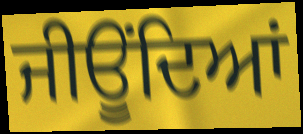
ਜੀਊਂਦਿਆਂ